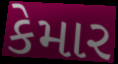
કેમાર